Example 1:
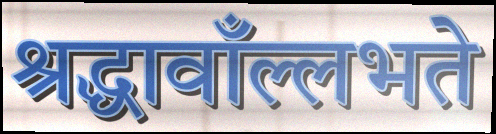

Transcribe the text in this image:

श्रद्धावाँल्लभते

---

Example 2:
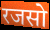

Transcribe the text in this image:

रजसो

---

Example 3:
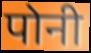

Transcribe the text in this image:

पोनी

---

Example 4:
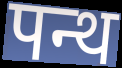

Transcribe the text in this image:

पन्थ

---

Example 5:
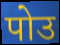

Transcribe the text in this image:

पोउ